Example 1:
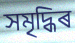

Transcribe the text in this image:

সমৃদ্ধিৰ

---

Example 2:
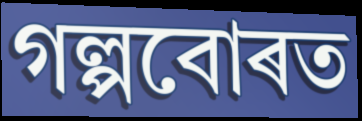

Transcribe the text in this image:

গল্পবোৰত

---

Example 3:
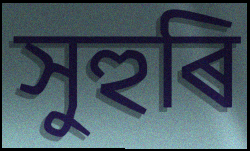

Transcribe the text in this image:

সুহুৰি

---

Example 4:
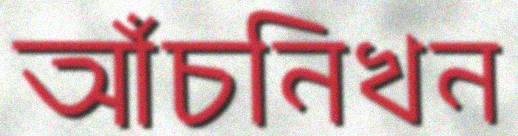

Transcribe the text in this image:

আঁচনিখন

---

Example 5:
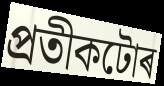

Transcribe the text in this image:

প্ৰতীকটোৰ